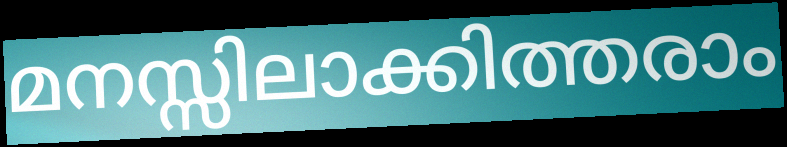
മനസ്സിലാക്കിത്തരാം